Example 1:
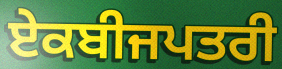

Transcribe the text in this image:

ਏਕਬੀਜਪਤਰੀ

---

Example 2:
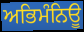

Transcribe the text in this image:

ਅਭਿਮੰਨਿਊ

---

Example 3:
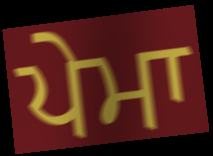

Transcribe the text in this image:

ਪੇਮਾ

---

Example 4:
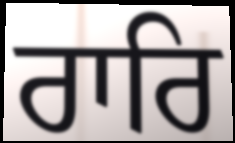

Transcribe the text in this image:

ਰਾਰਿ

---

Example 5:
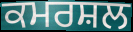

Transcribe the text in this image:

ਕਮਰਸ਼ਲ